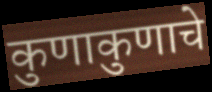
कुणाकुणाचे